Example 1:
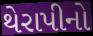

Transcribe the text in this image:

થેરાપીનો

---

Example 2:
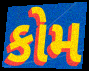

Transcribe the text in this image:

કોમ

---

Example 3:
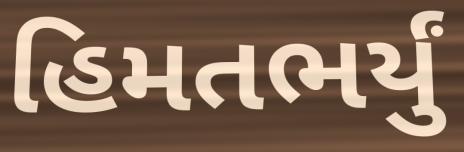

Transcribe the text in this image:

હિમતભર્યું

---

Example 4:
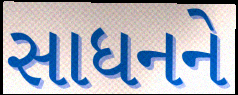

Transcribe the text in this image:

સાધનને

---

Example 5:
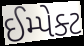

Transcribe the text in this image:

ઈમ્પેક્ટ